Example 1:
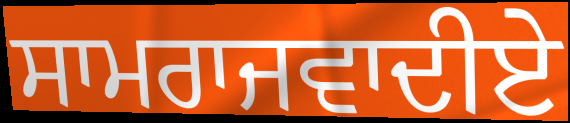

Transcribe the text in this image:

ਸਾਮਰਾਜਵਾਦੀਏ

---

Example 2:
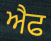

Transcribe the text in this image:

ਐਫ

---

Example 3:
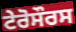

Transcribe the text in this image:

ਟੇਰੋਸੌਰਸ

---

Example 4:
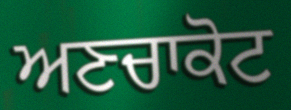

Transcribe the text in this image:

ਅਣਚਾਕੋਟ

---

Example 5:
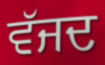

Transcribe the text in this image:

ਵੱਜਦ